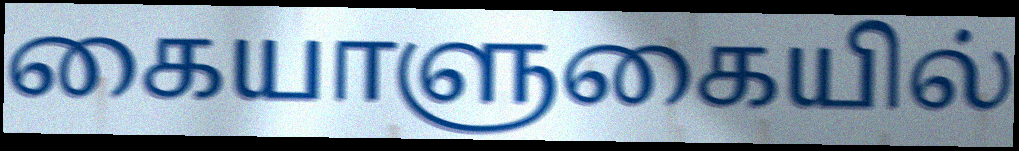
கையாளுகையில்